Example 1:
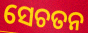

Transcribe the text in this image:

ସେଚତନ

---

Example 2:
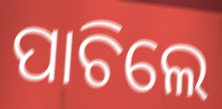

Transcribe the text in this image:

ପାଚିଲେ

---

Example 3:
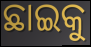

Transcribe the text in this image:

ଛାଇକୁ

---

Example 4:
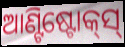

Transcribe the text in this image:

ଆଣ୍ଟିଷ୍ଟୋକ୍‍ସ୍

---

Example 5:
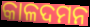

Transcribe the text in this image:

କାଳଦମନ